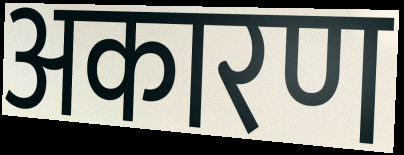
अकारण